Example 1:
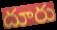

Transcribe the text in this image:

దూరు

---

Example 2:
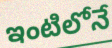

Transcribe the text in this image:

ఇంటిలోనే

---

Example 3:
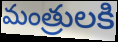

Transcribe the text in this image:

మంత్రులకి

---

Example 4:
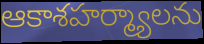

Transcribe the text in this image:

ఆకాశహర్మ్యాలను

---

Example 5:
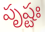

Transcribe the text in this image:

పృష్టః